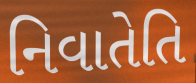
નિવાતેતિ